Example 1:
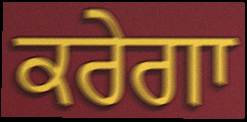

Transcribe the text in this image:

ਕਰੇਗਾ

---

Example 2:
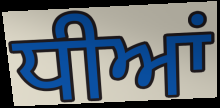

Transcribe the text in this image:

ਧੀਆਂ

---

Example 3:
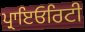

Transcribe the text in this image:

ਪ੍ਰਾਇਓਰਿਟੀ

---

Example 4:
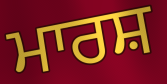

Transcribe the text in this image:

ਮਾਰਸ਼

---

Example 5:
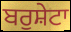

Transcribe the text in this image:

ਬਰੁਸ਼ੇਟਾ